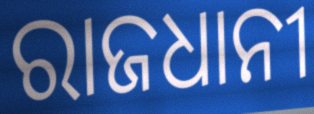
ରାଜଧାନୀ